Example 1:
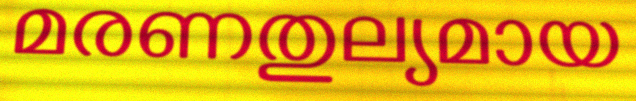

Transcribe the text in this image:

മരണതുല്യമായ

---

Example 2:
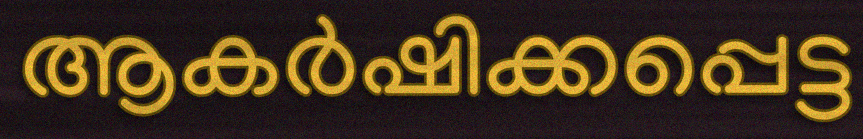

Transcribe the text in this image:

ആകർഷിക്കപ്പെട്ട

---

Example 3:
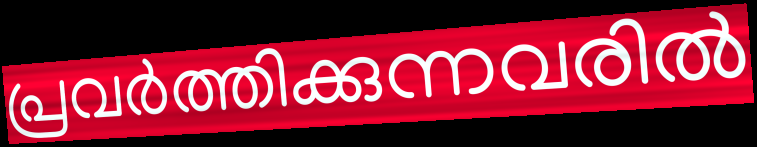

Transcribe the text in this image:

പ്രവർത്തിക്കുന്നവരിൽ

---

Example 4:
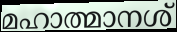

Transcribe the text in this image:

മഹാത്മാനശ്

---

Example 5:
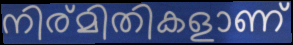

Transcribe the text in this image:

നിര്മിതികളാണ്